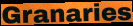
Granaries